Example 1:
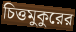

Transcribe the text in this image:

চিত্তমুকুরের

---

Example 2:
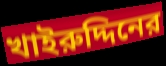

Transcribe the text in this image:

খাইরুদ্দিনের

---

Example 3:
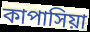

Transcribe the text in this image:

কাপাসিয়া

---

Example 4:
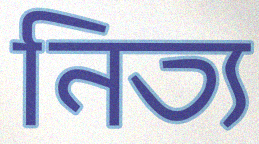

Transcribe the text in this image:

নিত্য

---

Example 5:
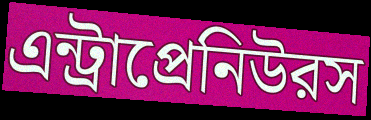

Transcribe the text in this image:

এন্ট্রাপ্রেনিউরস